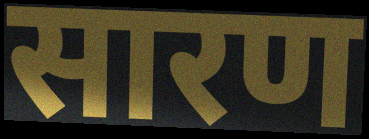
सारण